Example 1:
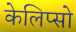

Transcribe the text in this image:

केलिप्सो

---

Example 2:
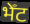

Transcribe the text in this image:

भेँट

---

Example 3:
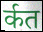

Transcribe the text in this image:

र्कत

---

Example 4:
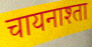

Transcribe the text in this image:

चायनाश्ता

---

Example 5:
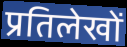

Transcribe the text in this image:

प्रतिलेखों